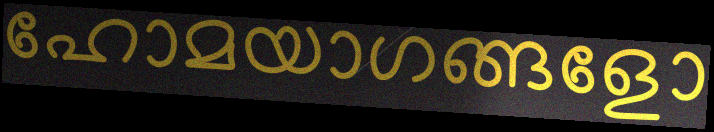
ഹോമയാഗങ്ങളോ